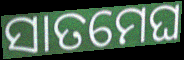
ସାତମେଘ